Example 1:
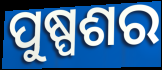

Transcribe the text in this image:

ପୁଷ୍ପଶର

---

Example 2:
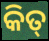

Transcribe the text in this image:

କିତ୍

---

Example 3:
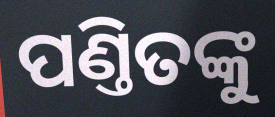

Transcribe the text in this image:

ପଣ୍ତିତଙ୍କୁ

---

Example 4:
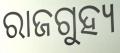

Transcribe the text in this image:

ରାଜଗୁହ୍ୟ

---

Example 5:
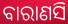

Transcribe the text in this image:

ବାରାଣସି